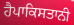
ਹੈਪਾਕਿਸਤਾਨੀ